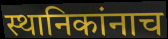
स्थानिकांनाच